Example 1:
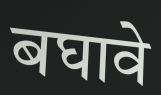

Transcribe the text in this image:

बघावे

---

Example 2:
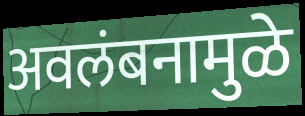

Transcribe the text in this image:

अवलंबनामुळे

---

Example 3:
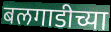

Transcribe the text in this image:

बलगाडीच्या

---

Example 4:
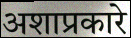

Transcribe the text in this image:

अशाप्रकारे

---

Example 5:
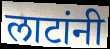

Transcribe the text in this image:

लाटांनी